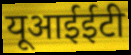
यूआईईटी